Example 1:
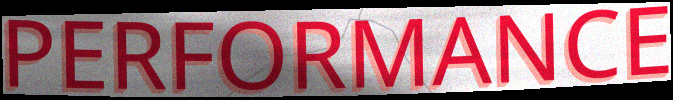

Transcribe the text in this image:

PERFORMANCE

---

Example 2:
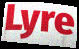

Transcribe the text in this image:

Lyre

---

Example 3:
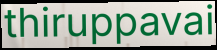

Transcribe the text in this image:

thiruppavai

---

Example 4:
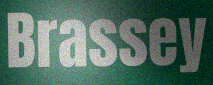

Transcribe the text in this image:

Brassey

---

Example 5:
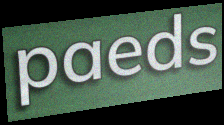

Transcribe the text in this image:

paeds